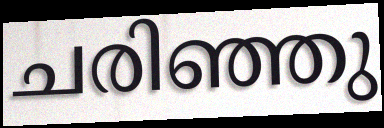
ചരിഞ്ഞു